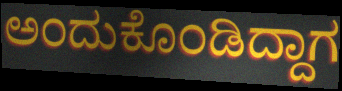
ಅಂದುಕೊಂಡಿದ್ದಾಗ